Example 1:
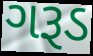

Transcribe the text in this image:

ગરૂડ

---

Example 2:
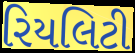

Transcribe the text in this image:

રિયલિટી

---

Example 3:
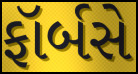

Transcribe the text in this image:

ફૉર્બસે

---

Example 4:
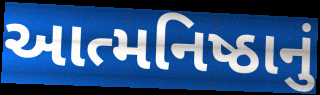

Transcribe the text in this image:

આત્મનિષ્ઠાનું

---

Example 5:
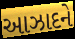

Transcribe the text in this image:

આઝાદને